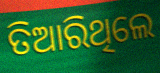
ତିଆରିଥିଲେ